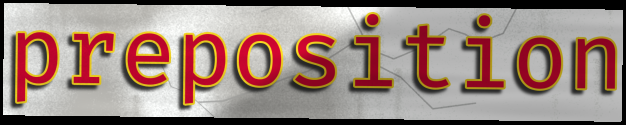
preposition